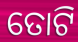
ତୋଟି